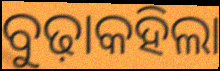
ବୁଢ଼ାକହିଲା